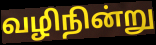
வழிநின்று